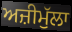
ਅਜ਼ੀਮੁੱਲਾ